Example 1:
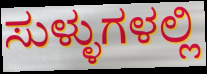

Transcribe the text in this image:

ಸುಳ್ಳುಗಳಲ್ಲಿ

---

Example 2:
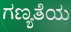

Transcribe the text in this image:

ಗಣ್ಯತೆಯ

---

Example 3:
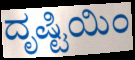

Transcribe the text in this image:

ದೃಷ್ಟಿಯಿಂ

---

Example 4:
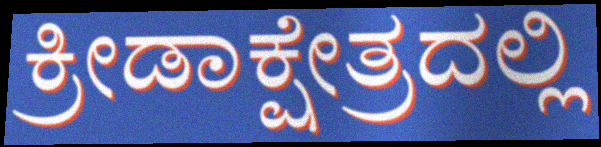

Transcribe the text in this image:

ಕ್ರೀಡಾಕ್ಷೇತ್ರದಲ್ಲಿ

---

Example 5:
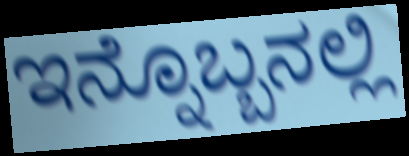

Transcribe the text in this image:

ಇನ್ನೊಬ್ಬನಲ್ಲಿ